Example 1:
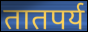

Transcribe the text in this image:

तातपर्य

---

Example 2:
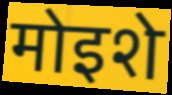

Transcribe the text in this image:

मोइशे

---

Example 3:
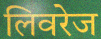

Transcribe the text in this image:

लिवरेज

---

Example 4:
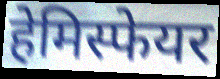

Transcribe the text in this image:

हेमिस्फेयर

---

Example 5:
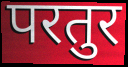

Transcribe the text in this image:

परतुर